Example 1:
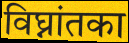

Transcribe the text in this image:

विघ्नांतका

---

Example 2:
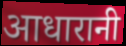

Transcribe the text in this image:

आधारानी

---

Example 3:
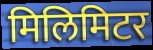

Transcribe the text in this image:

मिलिमिटर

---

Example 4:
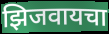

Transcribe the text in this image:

झिजवायचा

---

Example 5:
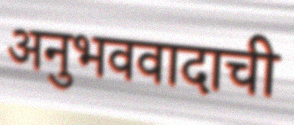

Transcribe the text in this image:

अनुभववादाची